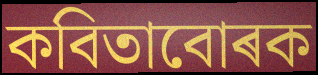
কবিতাবোৰক